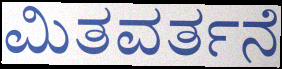
ಮಿತವರ್ತನೆ